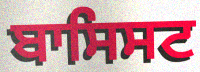
ਬਾਸਿਸਟ